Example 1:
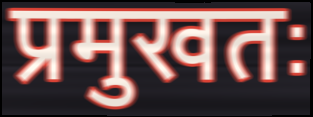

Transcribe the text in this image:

प्रमुखतः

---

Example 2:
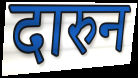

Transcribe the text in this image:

दारुन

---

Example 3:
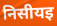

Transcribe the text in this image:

निसीयइ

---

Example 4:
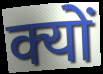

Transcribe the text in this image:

क्‍यों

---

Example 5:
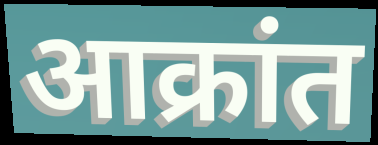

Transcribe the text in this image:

आक्रांत